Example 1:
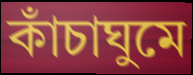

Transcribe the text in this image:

কাঁচাঘুমে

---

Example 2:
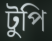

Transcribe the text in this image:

টুপি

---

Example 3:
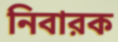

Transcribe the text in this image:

নিবারক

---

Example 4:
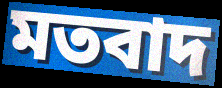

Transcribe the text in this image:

মতবাদ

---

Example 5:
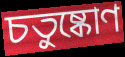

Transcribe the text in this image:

চতুষ্কোণ